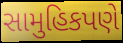
સામુહિકપણે